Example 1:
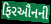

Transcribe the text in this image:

ફિરઔનની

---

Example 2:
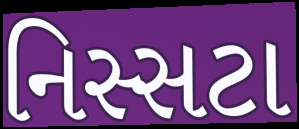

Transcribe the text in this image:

નિસ્સટા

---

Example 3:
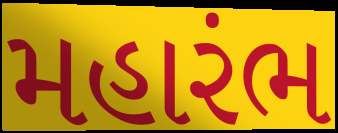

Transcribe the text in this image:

મહારંભ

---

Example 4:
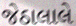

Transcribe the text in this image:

જેઠાલાલે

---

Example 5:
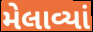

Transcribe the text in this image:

મેલાવ્યાં